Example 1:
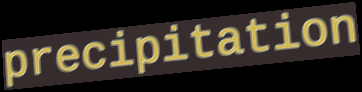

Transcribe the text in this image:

precipitation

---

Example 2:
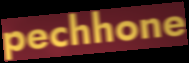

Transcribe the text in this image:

pechhone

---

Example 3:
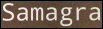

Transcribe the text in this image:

Samagra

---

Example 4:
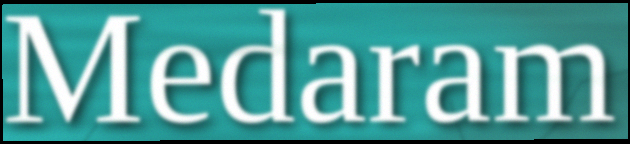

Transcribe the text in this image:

Medaram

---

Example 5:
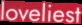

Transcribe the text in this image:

loveliest